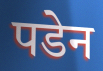
पडेन